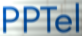
PPTel